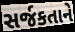
સર્જકતાને